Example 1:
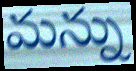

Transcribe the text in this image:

మన్ను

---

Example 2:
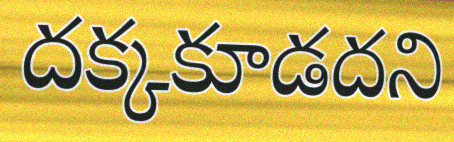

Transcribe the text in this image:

దక్కకూడదని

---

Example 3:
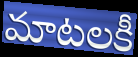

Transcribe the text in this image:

మాటలకీ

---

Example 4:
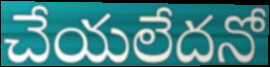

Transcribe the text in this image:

చేయలేదనో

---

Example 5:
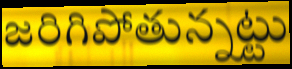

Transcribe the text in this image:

జరిగిపోతున్నట్టు